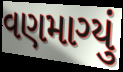
વણમાગ્યું